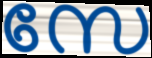
സേ